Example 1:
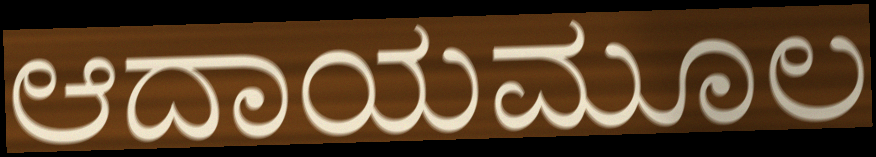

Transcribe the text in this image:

ಆದಾಯಮೂಲ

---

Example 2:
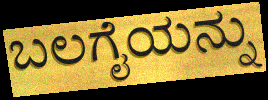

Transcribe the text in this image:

ಬಲಗೈಯನ್ನು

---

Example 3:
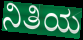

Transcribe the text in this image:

ನಿತಿಯ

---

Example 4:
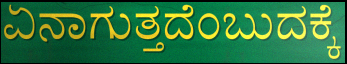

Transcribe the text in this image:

ಏನಾಗುತ್ತದೆಂಬುದಕ್ಕೆ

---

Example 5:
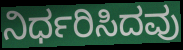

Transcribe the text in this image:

ನಿರ್ಧರಿಸಿದವು